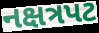
નક્ષત્રપટ